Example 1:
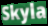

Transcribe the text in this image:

Skyla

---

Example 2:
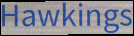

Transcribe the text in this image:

Hawkings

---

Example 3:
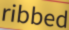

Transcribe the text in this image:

ribbed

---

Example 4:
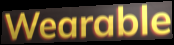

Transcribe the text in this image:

Wearable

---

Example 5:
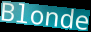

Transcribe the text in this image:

Blonde